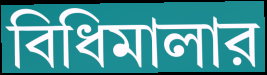
বিধিমালার